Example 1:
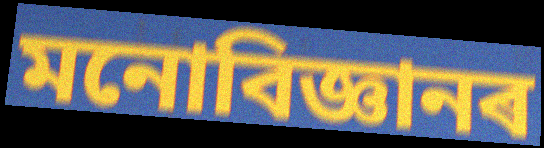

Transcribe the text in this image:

মনোবিজ্ঞানৰ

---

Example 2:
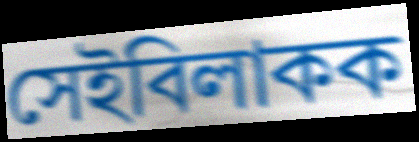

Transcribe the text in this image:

সেইবিলাকক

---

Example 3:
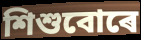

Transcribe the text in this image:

শিশুবোৰে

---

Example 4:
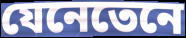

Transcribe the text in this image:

যেনেতেনে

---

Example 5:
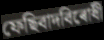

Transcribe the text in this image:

ফেছিবাদবিৰোধী